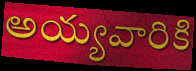
అయ్యవారికి